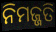
ନିମଜ୍ଜତି